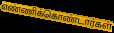
எண்ணிக்கொண்டார்கள்